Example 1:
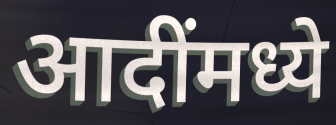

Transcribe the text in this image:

आदींमध्ये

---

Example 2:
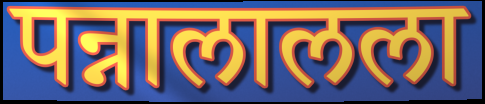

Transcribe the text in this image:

पन्नालालला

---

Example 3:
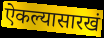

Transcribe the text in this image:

ऐकल्यासारखं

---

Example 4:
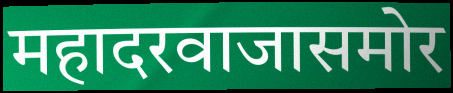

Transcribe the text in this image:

महादरवाजासमोर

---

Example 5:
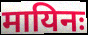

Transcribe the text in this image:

मायिनः